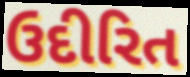
ઉદીરિત